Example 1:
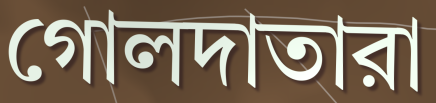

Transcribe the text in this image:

গোলদাতারা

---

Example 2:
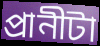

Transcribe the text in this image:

প্রানীটা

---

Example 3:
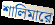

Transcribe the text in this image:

শালিমারে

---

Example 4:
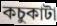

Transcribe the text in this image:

কচুকাটা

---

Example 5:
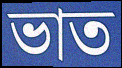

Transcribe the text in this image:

ভাত